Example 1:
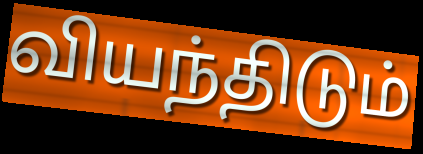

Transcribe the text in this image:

வியந்திடும்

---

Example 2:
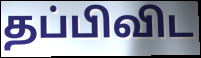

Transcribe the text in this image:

தப்பிவிட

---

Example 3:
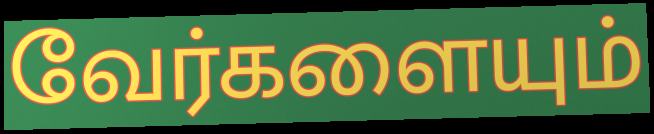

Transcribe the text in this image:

வேர்களையும்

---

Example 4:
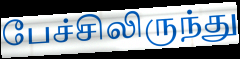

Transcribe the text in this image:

பேச்சிலிருந்து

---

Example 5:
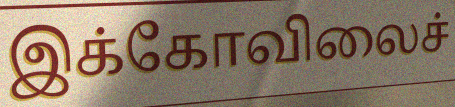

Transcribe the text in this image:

இக்கோவிலைச்